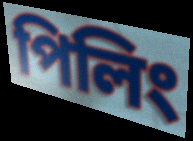
পিলিং